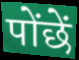
पोंछें